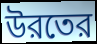
উরতের